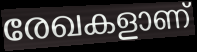
രേഖകളാണ്